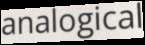
analogical